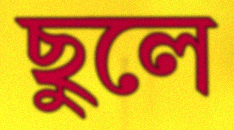
ছুলে